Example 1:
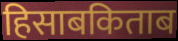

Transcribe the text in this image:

हिसाबकिताब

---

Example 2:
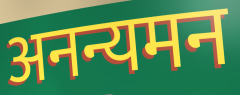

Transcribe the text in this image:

अनन्यमन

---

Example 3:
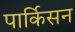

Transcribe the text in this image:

पार्किसन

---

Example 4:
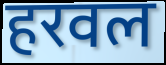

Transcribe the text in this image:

हरवल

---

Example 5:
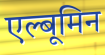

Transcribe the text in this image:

एल्बूमिन